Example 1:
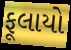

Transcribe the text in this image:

ફૂલાયો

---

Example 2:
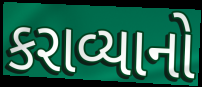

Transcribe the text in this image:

કરાવ્યાનો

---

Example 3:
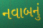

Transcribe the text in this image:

નવાબનું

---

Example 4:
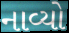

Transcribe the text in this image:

નાવ્યો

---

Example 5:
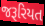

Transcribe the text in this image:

જરૂરિયત